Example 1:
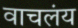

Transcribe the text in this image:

वाचलंय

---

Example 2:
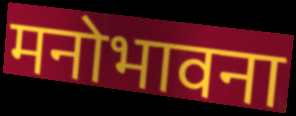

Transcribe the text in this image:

मनोभावना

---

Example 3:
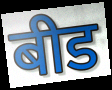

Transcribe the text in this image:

बीड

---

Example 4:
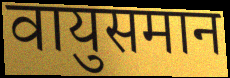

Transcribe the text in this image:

वायुसमान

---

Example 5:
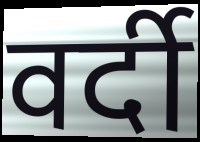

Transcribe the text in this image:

वर्दी